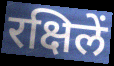
रक्षिलें